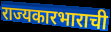
राज्यकारभाराची